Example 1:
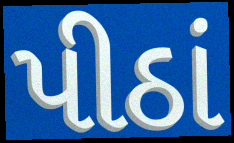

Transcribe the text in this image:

પીઠાં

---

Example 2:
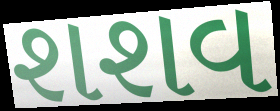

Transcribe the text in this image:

શશવ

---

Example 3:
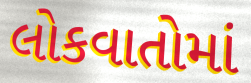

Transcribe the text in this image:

લોકવાતોમાં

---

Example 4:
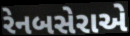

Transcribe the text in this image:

રેનબસેરાએ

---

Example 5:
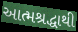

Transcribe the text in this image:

આત્મશ્રદ્ધાથી